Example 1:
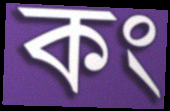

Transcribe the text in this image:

কং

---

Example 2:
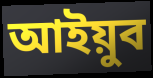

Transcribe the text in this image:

আইয়ুব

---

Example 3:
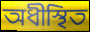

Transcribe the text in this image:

অধীস্থিত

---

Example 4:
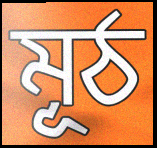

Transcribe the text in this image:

মূঠ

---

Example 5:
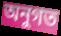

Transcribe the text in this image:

অনুগত